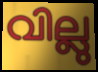
വില്ലു